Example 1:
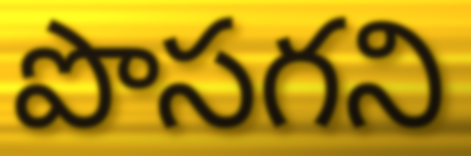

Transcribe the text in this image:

పొసగని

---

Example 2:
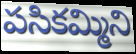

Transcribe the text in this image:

పసికమ్మిని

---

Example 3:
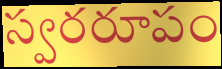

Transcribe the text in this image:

స్వరరూపం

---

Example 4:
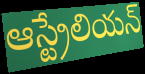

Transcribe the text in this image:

ఆస్ట్రేలియన్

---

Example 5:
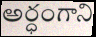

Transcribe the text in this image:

అర్ధంగాని